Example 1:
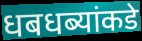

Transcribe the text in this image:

धबधब्यांकडे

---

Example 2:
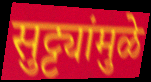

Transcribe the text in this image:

सुट्ट्यांमुळे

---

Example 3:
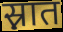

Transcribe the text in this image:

स्नात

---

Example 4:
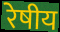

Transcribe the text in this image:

रेषीय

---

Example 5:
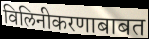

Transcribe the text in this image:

विलिनीकरणाबाबत